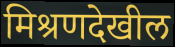
मिश्रणदेखील